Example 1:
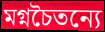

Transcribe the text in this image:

মগ্নচৈতন্যে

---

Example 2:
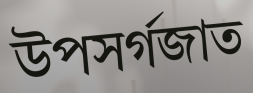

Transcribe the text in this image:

উপসর্গজাত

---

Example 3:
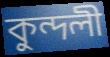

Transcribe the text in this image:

কুন্দলী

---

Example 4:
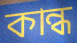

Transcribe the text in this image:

কান্ধ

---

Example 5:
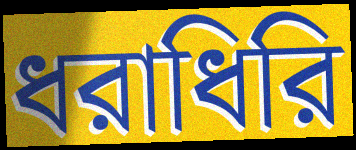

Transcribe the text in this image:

ধরাধিরি